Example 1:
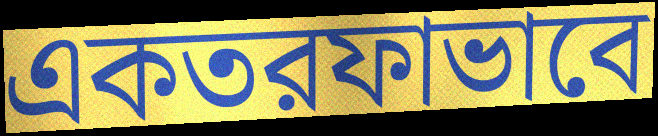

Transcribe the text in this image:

একতরফাভাবে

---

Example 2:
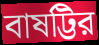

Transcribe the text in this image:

বাষট্টির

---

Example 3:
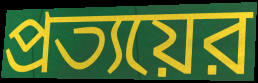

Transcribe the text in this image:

প্রত্যয়ের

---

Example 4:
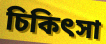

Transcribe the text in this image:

চিকিৎসা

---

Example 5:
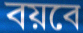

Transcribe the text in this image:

বয়বে